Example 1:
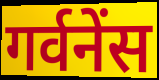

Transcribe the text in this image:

गर्वनेंस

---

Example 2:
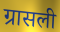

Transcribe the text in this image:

ग्रासली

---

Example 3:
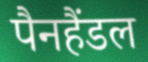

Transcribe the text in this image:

पैनहैंडल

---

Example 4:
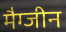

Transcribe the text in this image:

मैग्जीन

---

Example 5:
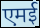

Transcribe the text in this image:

एमई